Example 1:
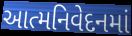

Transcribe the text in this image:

આત્મનિવેદનમાં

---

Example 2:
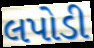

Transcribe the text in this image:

લપોડી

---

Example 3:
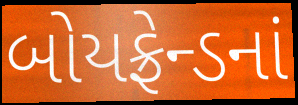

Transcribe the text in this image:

બોયફ્રેન્ડનાં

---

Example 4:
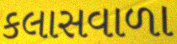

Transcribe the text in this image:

કલાસવાળા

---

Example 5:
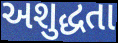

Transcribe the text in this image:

અશુદ્ધતા